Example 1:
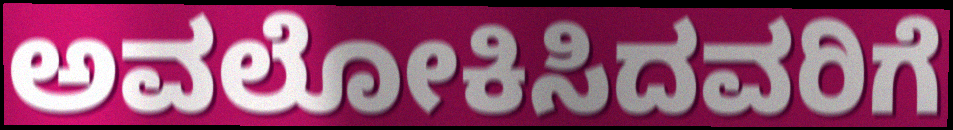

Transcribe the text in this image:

ಅವಲೋಕಿಸಿದವರಿಗೆ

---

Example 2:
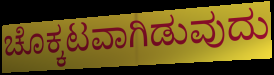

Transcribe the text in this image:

ಚೊಕ್ಕಟವಾಗಿಡುವುದು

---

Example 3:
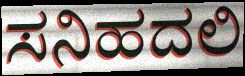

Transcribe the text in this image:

ಸನಿಹದಲಿ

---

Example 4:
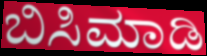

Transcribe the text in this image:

ಬಿಸಿಮಾಡಿ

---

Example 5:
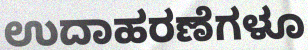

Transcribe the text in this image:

ಉದಾಹರಣೆಗಳೂ